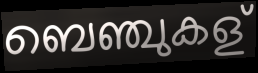
ബെഞ്ചുകള്